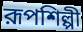
রূপশিল্পী